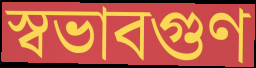
স্বভাবগুণ